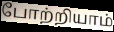
போற்றியாம்